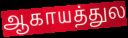
ஆகாயத்துல